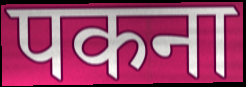
पकना